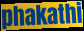
phakathi